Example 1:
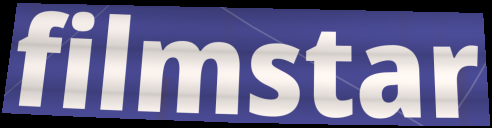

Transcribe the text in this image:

filmstar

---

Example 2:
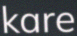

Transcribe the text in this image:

kare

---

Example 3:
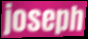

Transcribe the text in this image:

joseph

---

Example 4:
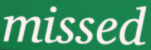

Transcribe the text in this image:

missed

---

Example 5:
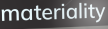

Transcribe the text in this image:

materiality